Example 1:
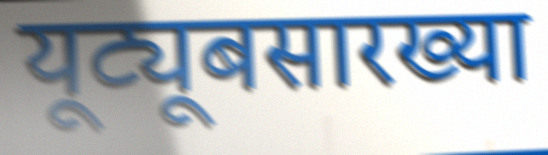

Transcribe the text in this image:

यूट्यूबसारख्या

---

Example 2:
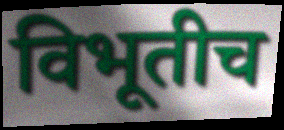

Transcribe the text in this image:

विभूतीच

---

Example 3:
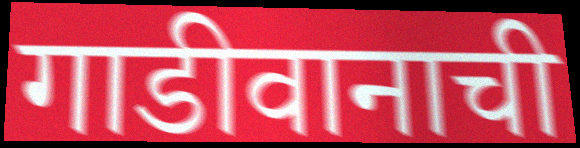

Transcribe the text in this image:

गाडीवानाची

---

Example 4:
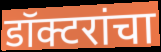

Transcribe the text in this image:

डॉक्टरांचा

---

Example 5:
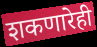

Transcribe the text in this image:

शकणारेही